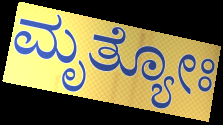
ಮೃತ್ಯೋಃ